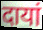
दायां